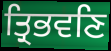
ਤ੍ਰਿਭਵਣਿ